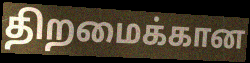
திறமைக்கான